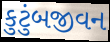
કુટુંબજીવન